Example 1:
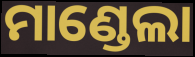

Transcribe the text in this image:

ମାଣ୍ଡେଲା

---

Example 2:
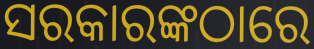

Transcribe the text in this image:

ସରକାରଙ୍କଠାରେ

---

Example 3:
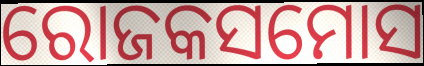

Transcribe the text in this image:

ରୋଜକସମୋସ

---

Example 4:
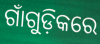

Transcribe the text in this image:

ଗାଁଗୁଡ଼ିକରେ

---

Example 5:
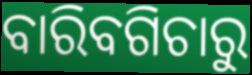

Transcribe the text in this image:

ବାରିବଗିଚାରୁ